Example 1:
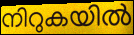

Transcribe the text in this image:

നിറുകയിൽ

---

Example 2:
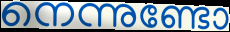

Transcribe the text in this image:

നെന്നുണ്ടോ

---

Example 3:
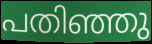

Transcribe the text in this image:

പതിഞ്ഞു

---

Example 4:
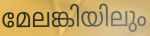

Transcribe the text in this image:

മേലങ്കിയിലും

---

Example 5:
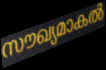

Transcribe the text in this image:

സൗഖ്യമാകൽ